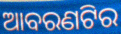
ଆବରଣଟିର